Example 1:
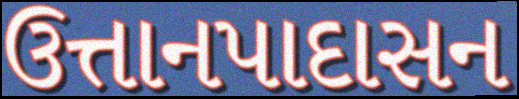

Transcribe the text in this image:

ઉત્તાનપાદાસન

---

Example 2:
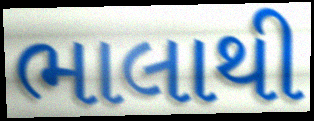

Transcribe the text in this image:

ભાલાથી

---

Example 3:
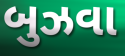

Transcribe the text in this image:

બુઝવા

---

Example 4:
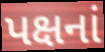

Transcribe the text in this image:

પક્ષનાં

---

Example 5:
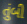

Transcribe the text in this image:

તુંબી